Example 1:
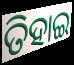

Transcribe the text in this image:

ତିହାଇ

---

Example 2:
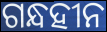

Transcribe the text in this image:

ଗନ୍ଧହୀନ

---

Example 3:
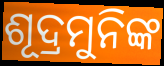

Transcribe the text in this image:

ଶୂଦ୍ରମୁନିଙ୍କ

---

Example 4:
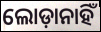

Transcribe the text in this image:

ଲୋଡ଼ାନାହିଁ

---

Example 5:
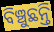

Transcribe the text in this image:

ବିଞ୍ଚୁଛନ୍ତି